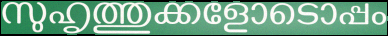
സുഹൃത്തുക്കളോടൊപ്പം